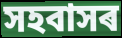
সহবাসৰ